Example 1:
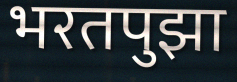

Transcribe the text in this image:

भरतपुझा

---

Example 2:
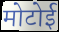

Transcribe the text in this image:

मोटोई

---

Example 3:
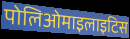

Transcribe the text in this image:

पोलिओमाइलाइटिस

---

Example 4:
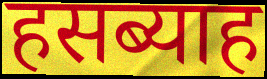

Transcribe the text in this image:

हसब्याह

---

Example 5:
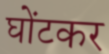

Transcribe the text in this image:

घोंटकर